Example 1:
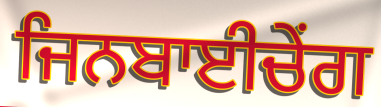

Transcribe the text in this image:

ਜਿਨਬਾਈਚੇਂਗ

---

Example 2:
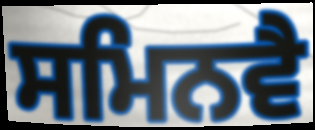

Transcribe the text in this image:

ਸਮਿਨਵੈ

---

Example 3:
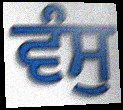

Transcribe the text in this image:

ਵੰਸੁ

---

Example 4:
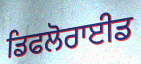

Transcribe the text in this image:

ਡਿਫਲੋਰਾਈਡ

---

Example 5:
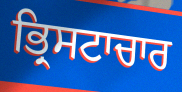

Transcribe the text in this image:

ਭ੍ਰਿਸਟਾਚਾਰ